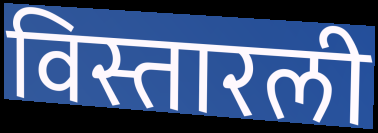
विस्तारली